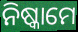
ନିଷ୍କାମେ